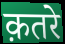
क़तरे